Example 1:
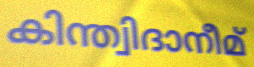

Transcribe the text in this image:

കിന്ത്വിദാനീമ്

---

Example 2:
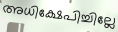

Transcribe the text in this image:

അധിക്ഷേപിച്ചില്ലേ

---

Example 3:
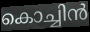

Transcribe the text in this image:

കൊച്ചിൻ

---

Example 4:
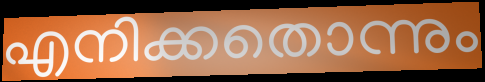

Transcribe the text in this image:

എനിക്കതൊന്നും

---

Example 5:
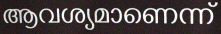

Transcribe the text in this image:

ആവശ്യമാണെന്ന്